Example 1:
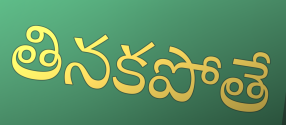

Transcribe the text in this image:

తినకపోతే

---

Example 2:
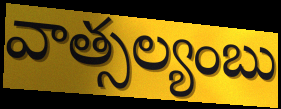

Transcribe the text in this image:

వాత్సల్యంబు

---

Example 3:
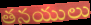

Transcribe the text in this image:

తనయులు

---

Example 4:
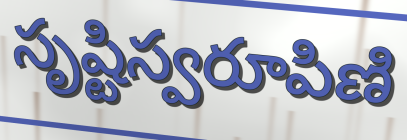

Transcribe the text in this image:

సృష్టిస్వరూపిణి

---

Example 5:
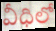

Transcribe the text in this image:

వీధిలో